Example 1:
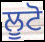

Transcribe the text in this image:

ਲੂਟੋ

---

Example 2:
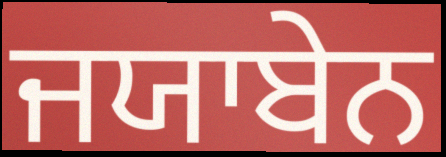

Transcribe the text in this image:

ਜਯਾਬੇਨ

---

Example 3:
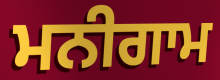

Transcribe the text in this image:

ਮਨੀਗਾਮ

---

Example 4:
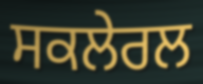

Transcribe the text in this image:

ਸਕਲੇਰਲ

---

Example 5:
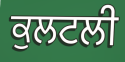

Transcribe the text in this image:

ਕੁਲਟਲੀ